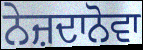
ਨੇਜ਼ਦਾਨੋਵਾ